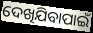
ଦେଖିଯିବାପାଇଁ